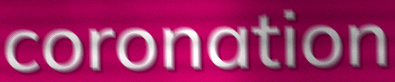
coronation